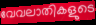
വേവലാതികളുടെ